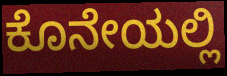
ಕೊನೇಯಲ್ಲಿ